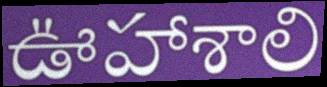
ఊహాశాలి